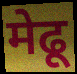
मेढू